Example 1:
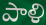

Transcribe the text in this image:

పాళి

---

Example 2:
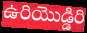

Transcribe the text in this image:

ఉరియొడ్డిరి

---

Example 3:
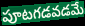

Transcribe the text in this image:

పూటగడవడమే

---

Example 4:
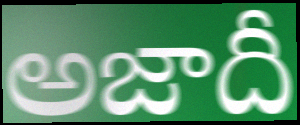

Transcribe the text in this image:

అజాదీ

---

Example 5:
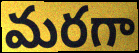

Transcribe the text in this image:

మరగా